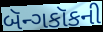
બૅન્ગકૉકની